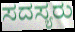
ಸದಸ್ಯರು